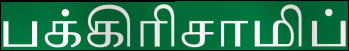
பக்கிரிசாமிப்